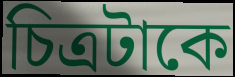
চিত্রটাকে